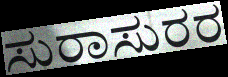
ಸುರಾಸುರರ